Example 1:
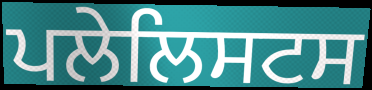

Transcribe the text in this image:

ਪਲੇਲਿਸਟਸ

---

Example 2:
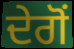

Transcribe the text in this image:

ਦੇਗੋਂ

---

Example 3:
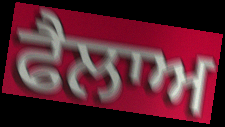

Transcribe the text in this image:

ਫੈਲਾਅ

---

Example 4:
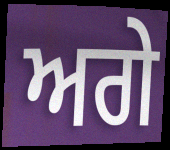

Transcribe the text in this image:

ਅਗੇ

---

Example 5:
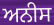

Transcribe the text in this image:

ਅਨੀਸ